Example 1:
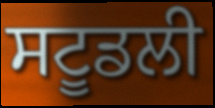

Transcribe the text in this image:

ਸਟੂਡਲੀ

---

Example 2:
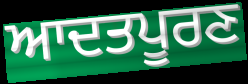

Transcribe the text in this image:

ਆਦਤਪੂਰਣ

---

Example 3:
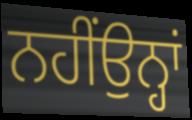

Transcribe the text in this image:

ਨਹੀਂਉਨ੍ਹਾਂ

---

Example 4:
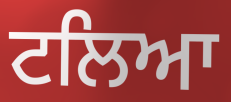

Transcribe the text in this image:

ਟਲਿਆ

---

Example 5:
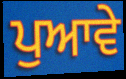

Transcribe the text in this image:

ਪੁਆਵੇ